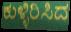
ಕುಳ್ಳಿರಿಸಿದ